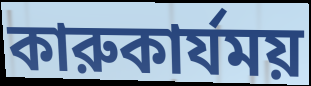
কারুকার্যময়